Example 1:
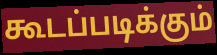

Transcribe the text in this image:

கூடப்படிக்கும்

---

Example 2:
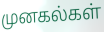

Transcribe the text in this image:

முனகல்கள்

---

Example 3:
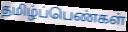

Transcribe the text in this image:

தமிழ்ப்பெண்கள்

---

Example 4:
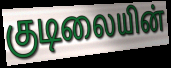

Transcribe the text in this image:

குடிலையின்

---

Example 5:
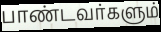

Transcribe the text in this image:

பாண்டவர்களும்